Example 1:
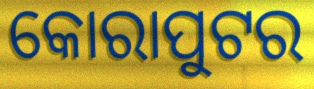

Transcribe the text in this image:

କୋରାପୁଟର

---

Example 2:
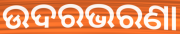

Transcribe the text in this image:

ଉଦରଭରଣା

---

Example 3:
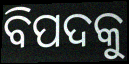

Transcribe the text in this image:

ବିପଦକୁ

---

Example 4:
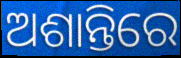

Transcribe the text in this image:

ଅଶାନ୍ତିରେ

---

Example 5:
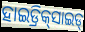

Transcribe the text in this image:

ହାଇଡ୍ରିକ୍‌ସାଇଡ୍